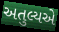
અતુલ્યએ